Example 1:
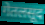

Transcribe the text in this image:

गेतलसूद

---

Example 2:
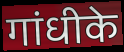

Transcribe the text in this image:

गांधीके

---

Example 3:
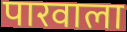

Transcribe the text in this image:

पारवाला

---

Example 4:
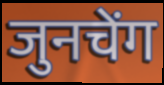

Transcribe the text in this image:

जुनचेंग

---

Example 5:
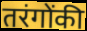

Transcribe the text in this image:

तरंगोंकी